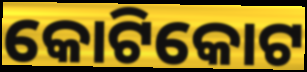
କୋଟିକୋଟ